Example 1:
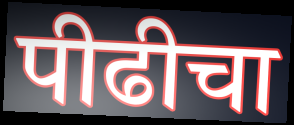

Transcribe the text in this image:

पीढीचा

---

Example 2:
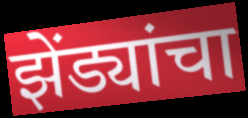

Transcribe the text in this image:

झेंड्यांचा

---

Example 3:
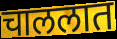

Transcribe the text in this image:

चाललात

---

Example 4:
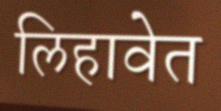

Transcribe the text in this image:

लिहावेत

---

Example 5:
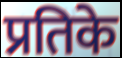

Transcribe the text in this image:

प्रतिके